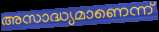
അസാദ്ധ്യമാണെന്ന്